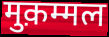
मुक़म्मल